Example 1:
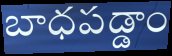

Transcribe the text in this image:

బాధపడ్డాం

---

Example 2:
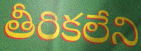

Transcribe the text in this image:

తీరికలేని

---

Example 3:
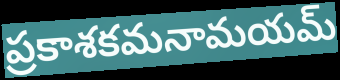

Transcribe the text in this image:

ప్రకాశకమనామయమ్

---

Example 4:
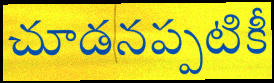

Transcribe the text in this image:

చూడనప్పటికీ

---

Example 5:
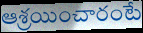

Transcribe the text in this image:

ఆశ్రయించారంటే